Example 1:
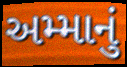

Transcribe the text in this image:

અમ્માનું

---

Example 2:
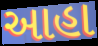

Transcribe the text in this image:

આહા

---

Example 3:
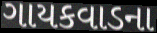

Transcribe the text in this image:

ગાયકવાડના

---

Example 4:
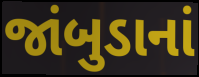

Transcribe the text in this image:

જાંબુડાનાં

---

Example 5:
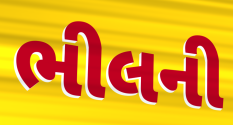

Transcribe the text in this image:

ભીલની